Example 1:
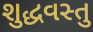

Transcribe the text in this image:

શુદ્ધવસ્તુ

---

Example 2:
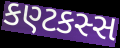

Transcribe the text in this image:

કણ્ટકસ્સ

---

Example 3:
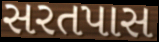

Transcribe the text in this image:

સરતપાસ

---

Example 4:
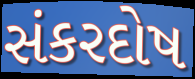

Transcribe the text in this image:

સંકરદોષ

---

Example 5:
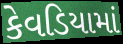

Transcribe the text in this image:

કેવડિયામાં